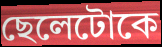
ছেলেটোকে